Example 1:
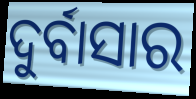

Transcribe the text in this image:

ଦୁର୍ବାସାର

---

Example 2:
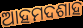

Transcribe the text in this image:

ଆହମଦଶାହ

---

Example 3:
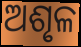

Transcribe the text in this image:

ଅଶୃଳ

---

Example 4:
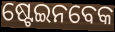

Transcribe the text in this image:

ଷ୍ଟେଇନବେକ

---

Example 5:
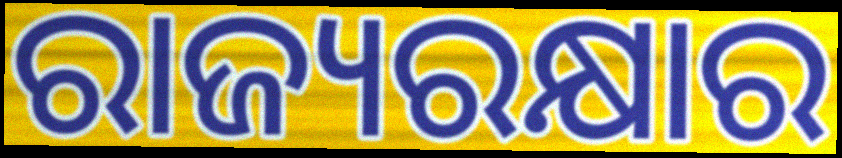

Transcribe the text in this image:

ରାଜ୍ୟରକ୍ଷାର